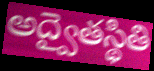
అద్వైతస్థితి